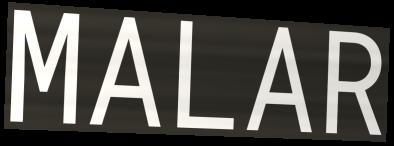
MALAR